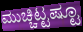
ಮುಚ್ಚಿಟ್ಟಷ್ಟೂ